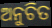
ଅନୁଚିତ